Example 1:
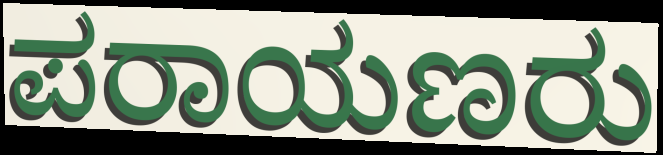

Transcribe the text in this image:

ಪರಾಯಣರು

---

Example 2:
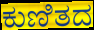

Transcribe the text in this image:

ಕುಣಿತದ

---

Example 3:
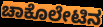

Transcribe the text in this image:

ಚಾಕೊಲೇಟಿನ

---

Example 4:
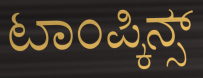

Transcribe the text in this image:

ಟಾಂಪ್ಕಿನ್ಸ್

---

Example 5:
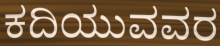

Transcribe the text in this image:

ಕದಿಯುವವರ